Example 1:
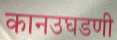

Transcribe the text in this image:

कानउघडणी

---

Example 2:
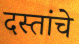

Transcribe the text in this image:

दस्तांचे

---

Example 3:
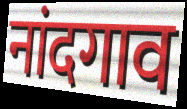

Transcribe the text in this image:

नांदगाव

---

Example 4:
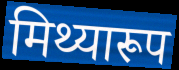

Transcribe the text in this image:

मिथ्यारूप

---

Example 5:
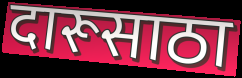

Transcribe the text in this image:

दारूसाठा